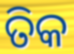
ତିକ